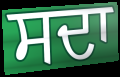
ਸਦਾ